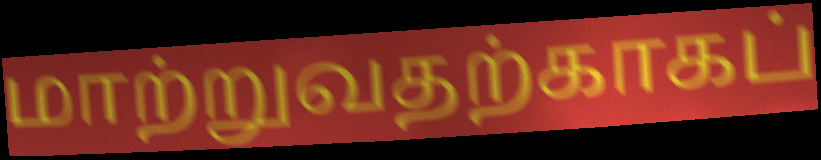
மாற்றுவதற்காகப்